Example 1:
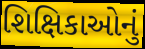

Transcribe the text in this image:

શિક્ષિકાઓનું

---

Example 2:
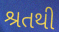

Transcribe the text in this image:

શ્રતથી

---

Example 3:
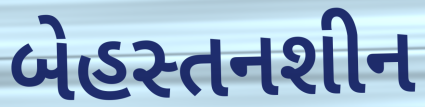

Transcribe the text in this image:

બેહસ્તનશીન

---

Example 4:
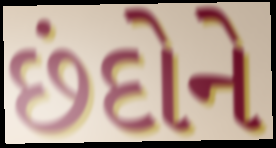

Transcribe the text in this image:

છંદોને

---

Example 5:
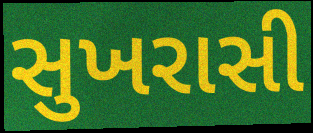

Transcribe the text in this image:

સુખરાસી